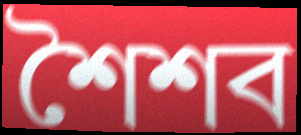
শৈশব